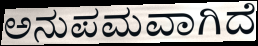
ಅನುಪಮವಾಗಿದೆ